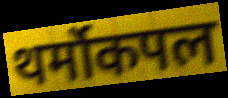
थर्मोकपल